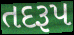
તદરૂપ